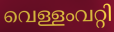
വെള്ളംവറ്റി